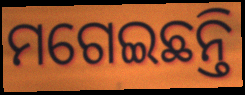
ମଗେଇଛନ୍ତି